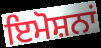
ਇਮੋਸ਼ਨਾਂ